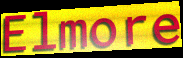
Elmore